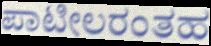
ಪಾಟೀಲರಂತಹ